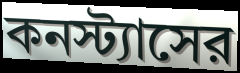
কনস্ট্যাসের